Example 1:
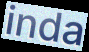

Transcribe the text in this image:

inda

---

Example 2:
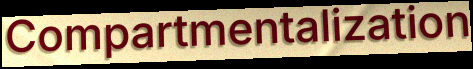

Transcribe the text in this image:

Compartmentalization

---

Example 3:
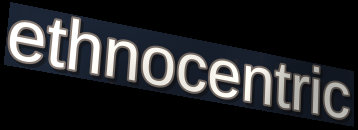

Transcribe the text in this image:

ethnocentric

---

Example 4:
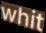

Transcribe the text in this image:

whit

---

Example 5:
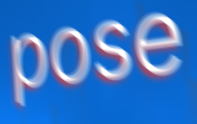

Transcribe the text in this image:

pose